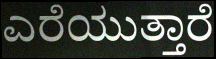
ಎರೆಯುತ್ತಾರೆ